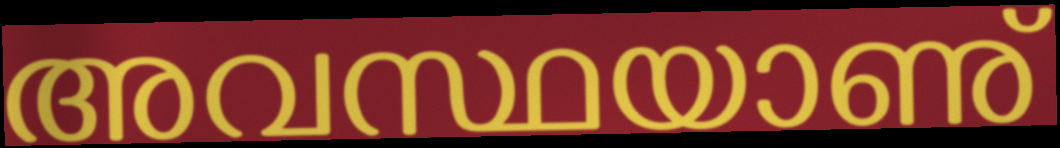
അവസ്ഥയാണു്